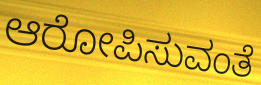
ಆರೋಪಿಸುವಂತೆ